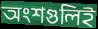
অংশগুলিই